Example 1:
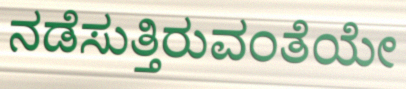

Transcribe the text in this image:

ನಡೆಸುತ್ತಿರುವಂತೆಯೇ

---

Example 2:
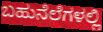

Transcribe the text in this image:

ಬಹುನೆಲೆಗಳಲ್ಲಿ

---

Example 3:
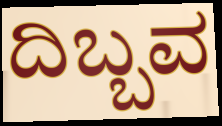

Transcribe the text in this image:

ದಿಬ್ಬವ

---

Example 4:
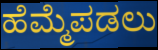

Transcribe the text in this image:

ಹೆಮ್ಮೆಪಡಲು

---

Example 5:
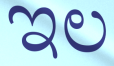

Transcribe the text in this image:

ಇಲ